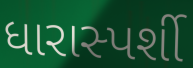
ધારાસ્પર્શી